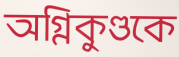
অগ্নিকুণ্ডকে